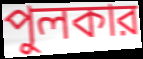
পুলকার